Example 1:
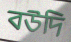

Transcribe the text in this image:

বউদি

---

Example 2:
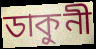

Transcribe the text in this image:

ডাকুনী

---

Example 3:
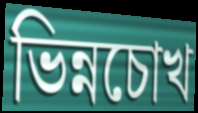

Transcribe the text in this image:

ভিন্নচোখ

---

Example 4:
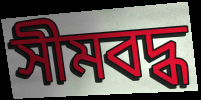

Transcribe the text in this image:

সীমবদ্ধ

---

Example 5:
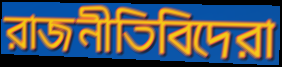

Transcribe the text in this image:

রাজনীতিবিদেরা